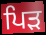
ਪਿੜ